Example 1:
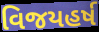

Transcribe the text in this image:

વિજયહર્ષ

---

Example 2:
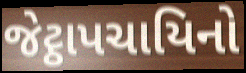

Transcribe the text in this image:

જેટ્ઠાપચાયિનો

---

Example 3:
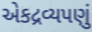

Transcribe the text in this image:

એકદ્રવ્યપણું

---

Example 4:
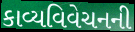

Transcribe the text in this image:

કાવ્યવિવેચનની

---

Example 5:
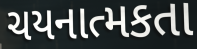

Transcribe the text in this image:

ચયનાત્મકતા